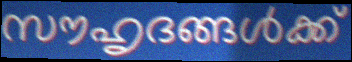
സൗഹൃദങ്ങൾക്ക്